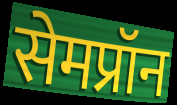
सेमप्रॉन